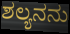
ಶಲ್ಯನನು